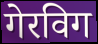
गेरविग